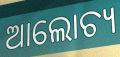
ଆଲୋଚ୍ୟ